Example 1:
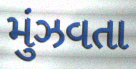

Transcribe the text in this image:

મુંઝવતા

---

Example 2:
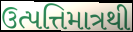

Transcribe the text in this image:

ઉત્પત્તિમાત્રથી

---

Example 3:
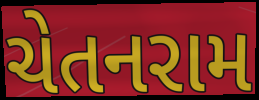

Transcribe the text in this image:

ચેતનરામ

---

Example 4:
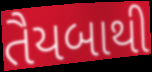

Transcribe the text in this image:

તૈયબાથી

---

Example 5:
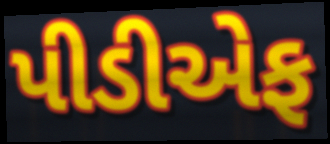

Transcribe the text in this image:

પીડીએફ